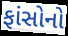
ફાંસોનો